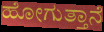
ಹೋಗುತ್ತಾನೆ